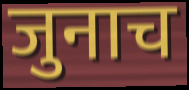
जुनाच